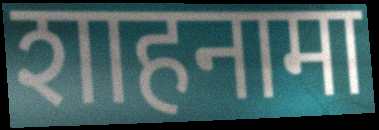
शाहनामा